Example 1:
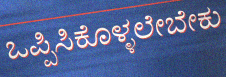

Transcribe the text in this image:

ಒಪ್ಪಿಸಿಕೊಳ್ಳಲೇಬೇಕು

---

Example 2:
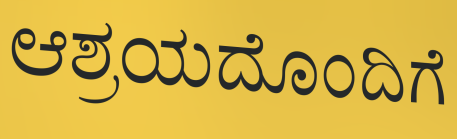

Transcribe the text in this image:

ಆಶ್ರಯದೊಂದಿಗೆ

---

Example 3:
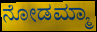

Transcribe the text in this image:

ನೋಡಮ್ಮಾ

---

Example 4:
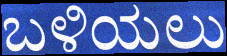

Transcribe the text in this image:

ಬಳಿಯಲು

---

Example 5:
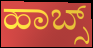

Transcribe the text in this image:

ಹಾಬ್ಸ್